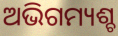
ଅଭିଗମ୍ୟଶ୍ଚ